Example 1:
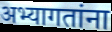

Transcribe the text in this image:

अभ्यागतांना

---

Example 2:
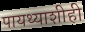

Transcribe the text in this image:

पायथ्याशीही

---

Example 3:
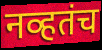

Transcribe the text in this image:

नव्हतंच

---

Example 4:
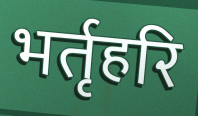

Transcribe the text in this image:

भर्तृहरि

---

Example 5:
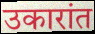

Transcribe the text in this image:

उकारांत